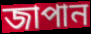
জাপান